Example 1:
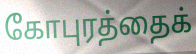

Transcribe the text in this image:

கோபுரத்தைக்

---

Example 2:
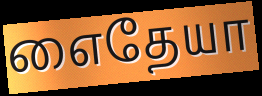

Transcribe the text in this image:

எைதேயா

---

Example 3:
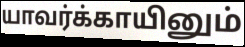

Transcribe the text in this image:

யாவர்க்காயினும்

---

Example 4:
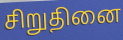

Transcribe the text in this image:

சிறுதினை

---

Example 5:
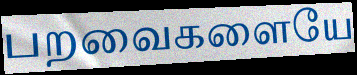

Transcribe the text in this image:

பறவைகளையே